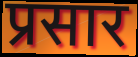
प्रसार